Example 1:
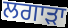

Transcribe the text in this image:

ਲਗਾੜਾ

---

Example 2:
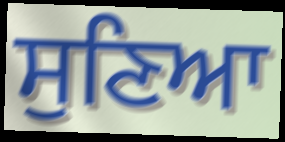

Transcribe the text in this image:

ਸੁਣਿਆ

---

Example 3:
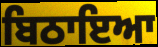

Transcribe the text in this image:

ਬਿਠਾਇਆ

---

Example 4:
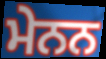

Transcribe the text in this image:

ਮੇਨਨ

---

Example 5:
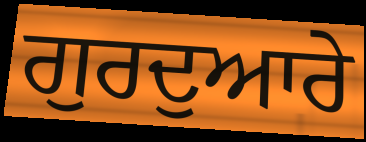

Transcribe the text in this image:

ਗੁਰਦੁਆਰੇ